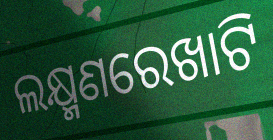
ଲକ୍ଷ୍ମଣରେଖାଟି